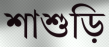
শাশুড়ি